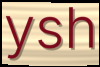
ysh